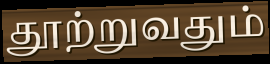
தூற்றுவதும்